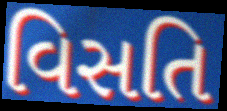
વિસતિ